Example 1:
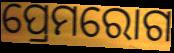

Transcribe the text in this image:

ପ୍ରେମରୋଗ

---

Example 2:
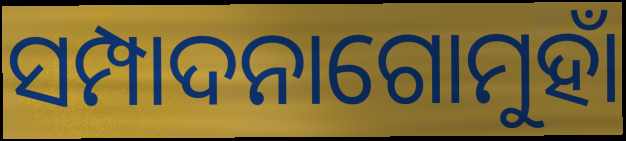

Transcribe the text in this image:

ସମ୍ପାଦନାଗୋମୁହାଁ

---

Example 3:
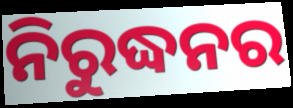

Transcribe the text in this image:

ନିରୁଦ୍ଧନର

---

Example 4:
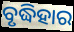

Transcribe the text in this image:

ବୃଦ୍ଧିହାର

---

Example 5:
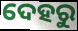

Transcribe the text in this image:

ଦେହରୁ